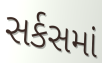
સર્કસમાં